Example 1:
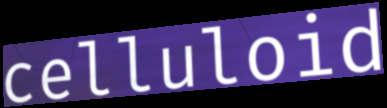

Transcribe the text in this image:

celluloid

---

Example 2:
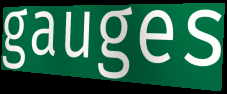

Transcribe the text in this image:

gauges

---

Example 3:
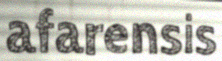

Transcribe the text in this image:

afarensis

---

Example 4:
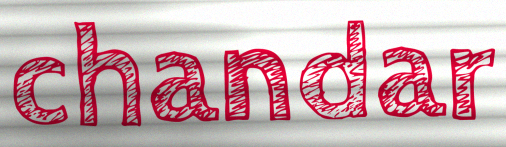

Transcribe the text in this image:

chandar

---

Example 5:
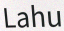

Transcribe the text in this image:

Lahu